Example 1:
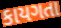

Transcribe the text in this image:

કાયગતા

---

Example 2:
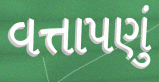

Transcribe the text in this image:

વત્તાપણું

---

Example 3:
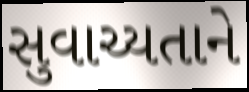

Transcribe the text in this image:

સુવાચ્યતાને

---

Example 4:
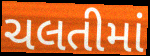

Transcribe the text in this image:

ચલતીમાં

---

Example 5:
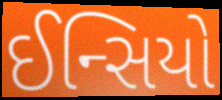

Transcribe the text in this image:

ઈન્સિયો